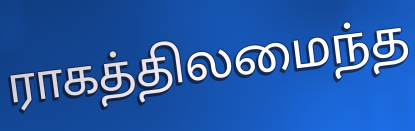
ராகத்திலமைந்த